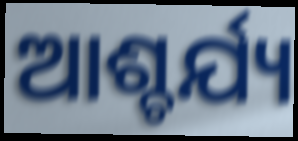
ଆଶ୍ଚର୍ଯ୍ୟ